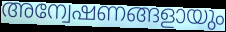
അന്വേഷണങ്ങളായും